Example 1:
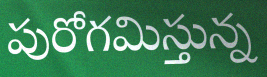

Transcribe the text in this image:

పురోగమిస్తున్న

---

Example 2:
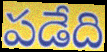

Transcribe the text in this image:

పడేది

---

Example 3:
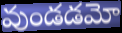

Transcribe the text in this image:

వుండడమో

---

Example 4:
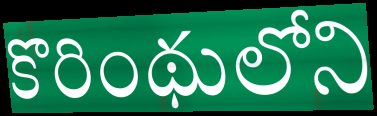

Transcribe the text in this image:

కొరింథులోని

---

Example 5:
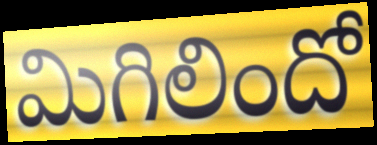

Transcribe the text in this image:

మిగిలిందో